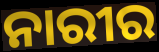
ନାରୀର